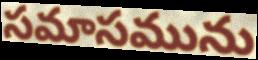
సమాసమును